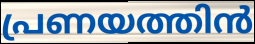
പ്രണയത്തിൻ